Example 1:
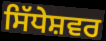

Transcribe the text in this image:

ਸਿੱਧੇਸ਼ਵਰ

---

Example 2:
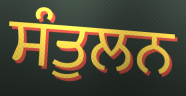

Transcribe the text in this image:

ਸੰਤੁਲਨ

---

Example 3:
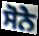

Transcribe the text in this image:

ਸੋਨੇ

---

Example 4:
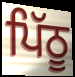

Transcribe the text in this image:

ਪਿੱਠੂ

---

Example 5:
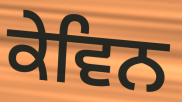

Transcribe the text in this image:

ਕੇਵਿਨ